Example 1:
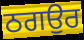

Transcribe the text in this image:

ਠਗਉਰ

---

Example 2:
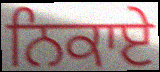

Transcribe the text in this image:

ਨਿਕਾਏ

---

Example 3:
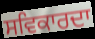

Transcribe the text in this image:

ਸਵਿਕਾਰਦਾ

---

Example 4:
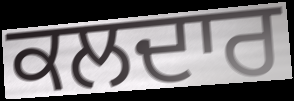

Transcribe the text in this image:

ਕਲਦਾਰ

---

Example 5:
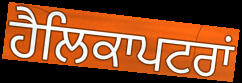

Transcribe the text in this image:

ਹੈਲਿਕਾਪਟਰਾਂ